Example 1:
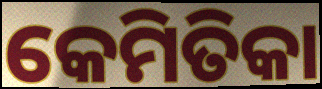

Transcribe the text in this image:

କେମିତିକା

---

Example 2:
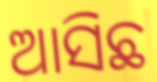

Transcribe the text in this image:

ଆସିଛ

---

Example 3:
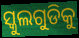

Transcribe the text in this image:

ସ୍କୁଲଗୁଡିକୁ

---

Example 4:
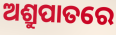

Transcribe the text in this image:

ଅଶ୍ରୁପାତରେ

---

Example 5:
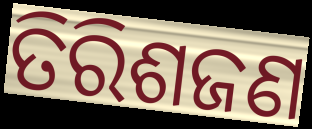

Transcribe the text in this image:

ତିରିଶଜଣ